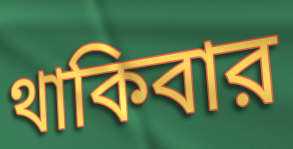
থাকিবার